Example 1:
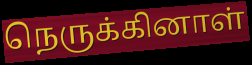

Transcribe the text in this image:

நெருக்கினாள்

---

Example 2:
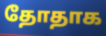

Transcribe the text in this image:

தோதாக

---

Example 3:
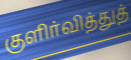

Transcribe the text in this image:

குளிர்வித்துத்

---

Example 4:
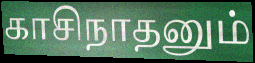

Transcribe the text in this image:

காசிநாதனும்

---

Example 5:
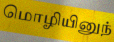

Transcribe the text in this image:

மொழியினுந்